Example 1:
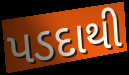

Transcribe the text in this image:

પડદાથી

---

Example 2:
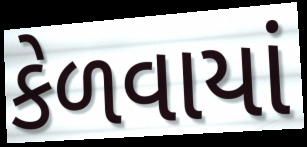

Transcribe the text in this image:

કેળવાયાં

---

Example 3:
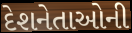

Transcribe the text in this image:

દેશનેતાઓની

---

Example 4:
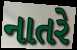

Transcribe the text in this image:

નાતરે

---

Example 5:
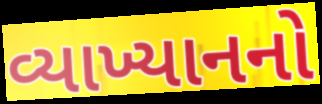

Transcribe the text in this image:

વ્યાખ્યાનનો